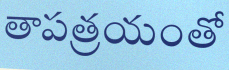
తాపత్రయంతో